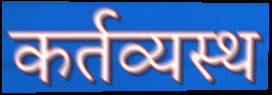
कर्तव्यस्थ